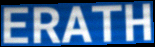
ERATH